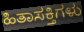
ಹಿತಾಸಕ್ತಿಗಳು